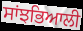
ਸਾਂਝਭਿਆਲੀ